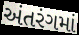
અંતરંગમાં